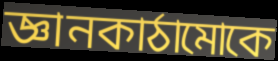
জ্ঞানকাঠামোকে